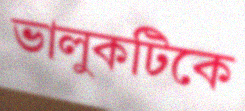
ভালুকটিকে